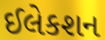
ઈલેકશન